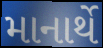
માનાર્થે